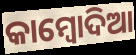
କାମ୍ବୋଦିଆ